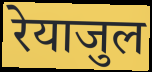
रेयाजुल